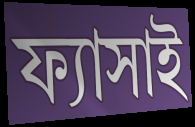
ফ্যাসাই